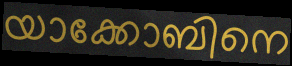
യാക്കോബിനെ